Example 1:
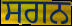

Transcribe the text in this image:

ਸਗਨ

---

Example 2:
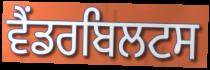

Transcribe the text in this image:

ਵੈਂਡਰਬਿਲਟਸ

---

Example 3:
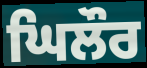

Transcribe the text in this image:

ਘਿਲੌਰ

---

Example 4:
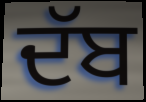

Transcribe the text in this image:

ਦੱਬ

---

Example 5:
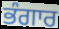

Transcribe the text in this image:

ਭੰਗਾਰ